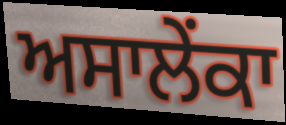
ਅਸਾਲੇਂਕਾ